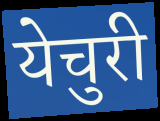
येचुरी